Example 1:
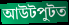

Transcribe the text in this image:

আউটপুটত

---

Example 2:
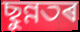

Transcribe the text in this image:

ছুন্নতৰ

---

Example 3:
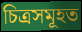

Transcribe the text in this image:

চিত্ৰসমূহত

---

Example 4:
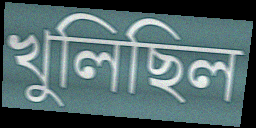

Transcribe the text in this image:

খুলিছিল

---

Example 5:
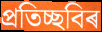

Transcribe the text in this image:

প্ৰতিচ্ছবিৰ